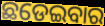
ଛଡେଇବାର